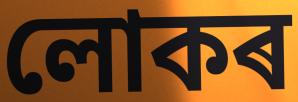
লোকৰ